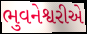
ભુવનેશ્વરીએ